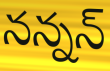
నన్నన్